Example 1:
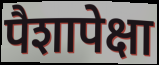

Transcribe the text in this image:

पैशापेक्षा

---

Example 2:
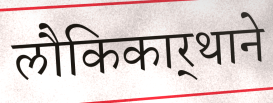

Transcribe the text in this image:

लौकिकार्थाने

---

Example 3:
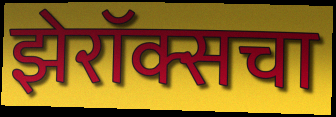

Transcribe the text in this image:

झेरॉक्सचा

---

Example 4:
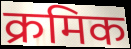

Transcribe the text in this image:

क्रमिक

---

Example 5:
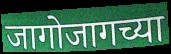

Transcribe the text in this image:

जागोजागच्या